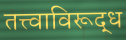
तत्त्वाविरूद्ध